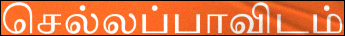
செல்லப்பாவிடம்